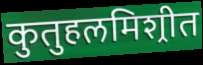
कुतुहलमिश्रीत